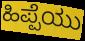
ಹಿಪ್ಪೆಯು